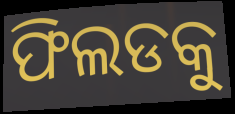
ଫିଲଡକୁ